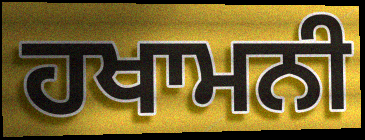
ਹਖਾਮਨੀ